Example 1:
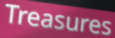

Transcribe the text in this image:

Treasures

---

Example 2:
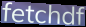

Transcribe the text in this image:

fetchdf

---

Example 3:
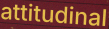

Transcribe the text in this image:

attitudinal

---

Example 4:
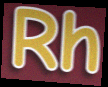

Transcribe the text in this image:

Rh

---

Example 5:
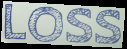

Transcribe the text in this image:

LOSS